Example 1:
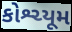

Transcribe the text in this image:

કોશ્ચ્યૂમ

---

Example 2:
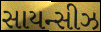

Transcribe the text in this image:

સાયન્સીઝ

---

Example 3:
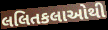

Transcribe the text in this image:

લલિતકલાઓથી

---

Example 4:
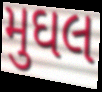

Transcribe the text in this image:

મુઘલ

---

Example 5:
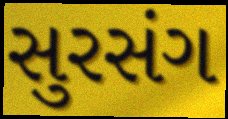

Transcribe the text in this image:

સુરસંગ